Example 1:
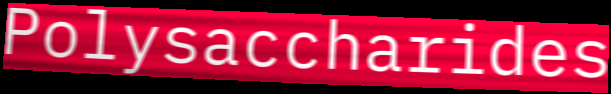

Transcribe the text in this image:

Polysaccharides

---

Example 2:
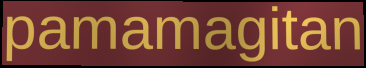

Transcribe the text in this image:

pamamagitan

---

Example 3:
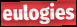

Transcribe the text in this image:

eulogies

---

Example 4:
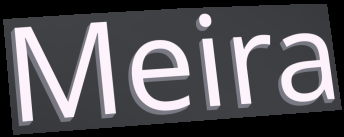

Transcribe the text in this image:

Meira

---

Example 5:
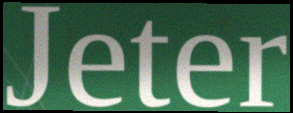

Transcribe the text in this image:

Jeter